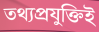
তথ্যপ্রযুক্তিই